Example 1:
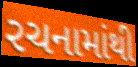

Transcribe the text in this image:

રચનામાંથી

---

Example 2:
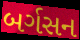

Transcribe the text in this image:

બર્ગસન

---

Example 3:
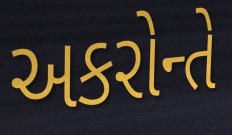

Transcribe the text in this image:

અકરોન્તે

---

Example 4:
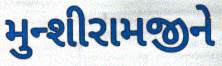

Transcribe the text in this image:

મુન્શીરામજીને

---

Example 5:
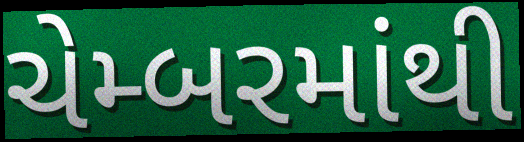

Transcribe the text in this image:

ચેમ્બરમાંથી